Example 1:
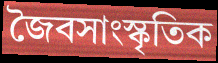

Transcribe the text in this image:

জৈবসাংস্কৃতিক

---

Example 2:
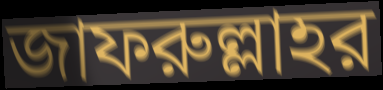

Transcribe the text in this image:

জাফরুল্লাহর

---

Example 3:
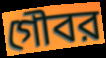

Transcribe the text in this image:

গৌবর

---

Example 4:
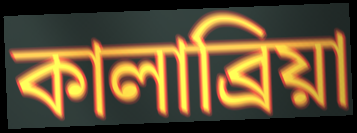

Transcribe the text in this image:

কালাব্রিয়া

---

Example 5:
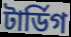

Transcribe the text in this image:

টার্ডিগ